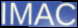
IMAC